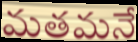
మతమనే